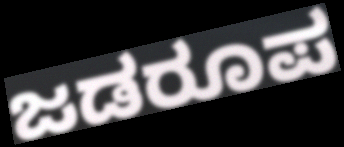
ಜಡರೂಪ